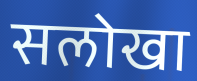
सलोखा